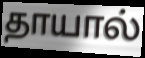
தாயால்